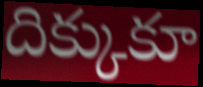
దిక్కుకూ